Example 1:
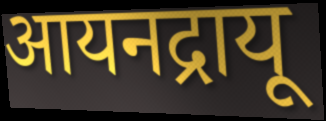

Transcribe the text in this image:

आयनद्रायू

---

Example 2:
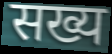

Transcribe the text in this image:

सख्य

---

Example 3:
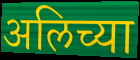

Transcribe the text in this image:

अलिच्या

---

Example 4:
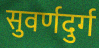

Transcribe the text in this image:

सुवर्णदुर्ग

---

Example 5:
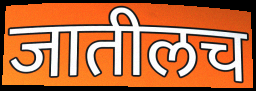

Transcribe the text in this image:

जातीलच